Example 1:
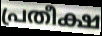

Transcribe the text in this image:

പ്രതീക്ഷ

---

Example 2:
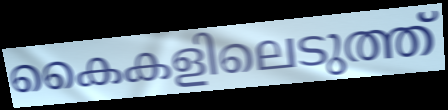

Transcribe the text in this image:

കൈകളിലെടുത്ത്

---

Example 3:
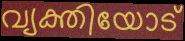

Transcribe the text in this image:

വ്യക്തിയോട്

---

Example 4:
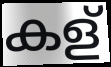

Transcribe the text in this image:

കള്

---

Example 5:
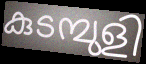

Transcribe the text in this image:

കുടമ്പുളി